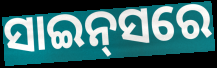
ସାଇନ୍‌ସରେ